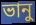
ভানু